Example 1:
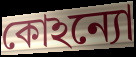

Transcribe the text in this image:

কোঽন্যো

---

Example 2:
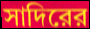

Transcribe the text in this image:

সাদিরের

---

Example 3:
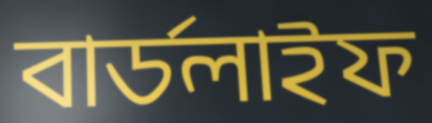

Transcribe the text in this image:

বার্ডলাইফ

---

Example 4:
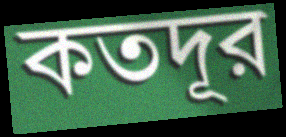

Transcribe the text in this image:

কতদূর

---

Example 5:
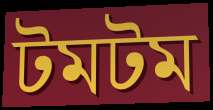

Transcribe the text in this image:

টমটম